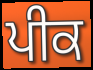
ਪੀਕ